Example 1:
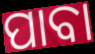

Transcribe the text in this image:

ପାବା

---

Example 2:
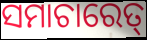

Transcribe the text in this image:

ସମାଚାରେତ୍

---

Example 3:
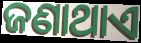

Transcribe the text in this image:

ଜଣାଥାଏ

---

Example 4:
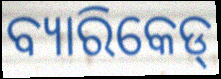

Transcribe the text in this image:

ବ୍ୟାରିକେଡ୍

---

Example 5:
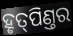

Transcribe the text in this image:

ହୃତ୍‌ପିଣ୍ତର